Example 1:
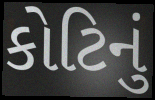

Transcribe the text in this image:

કોટિનું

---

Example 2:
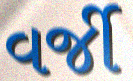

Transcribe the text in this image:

વર્જી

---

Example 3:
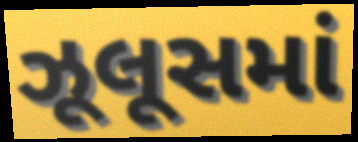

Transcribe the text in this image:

ઝૂલૂસમાં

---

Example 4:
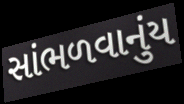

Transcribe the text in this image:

સાંભળવાનુંય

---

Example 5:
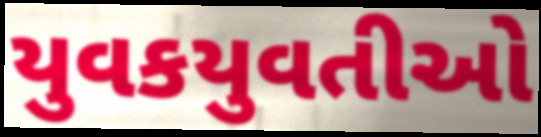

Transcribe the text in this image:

યુવકયુવતીઓ